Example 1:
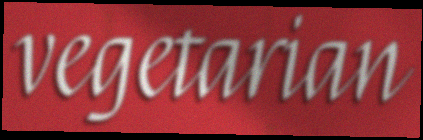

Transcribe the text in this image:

vegetarian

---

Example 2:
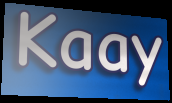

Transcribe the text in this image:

Kaay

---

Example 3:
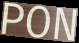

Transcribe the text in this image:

PON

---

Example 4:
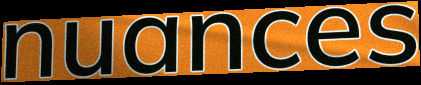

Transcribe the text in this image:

nuances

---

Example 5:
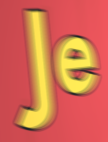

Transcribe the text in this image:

Je